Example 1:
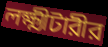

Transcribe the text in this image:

লক্ষ্মীটারীর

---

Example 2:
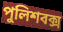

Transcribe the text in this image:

পুলিশবক্স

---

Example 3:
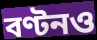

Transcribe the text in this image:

বণ্টনও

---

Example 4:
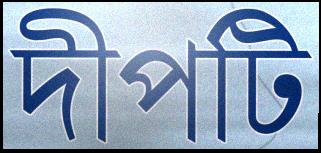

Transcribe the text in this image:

দীপটি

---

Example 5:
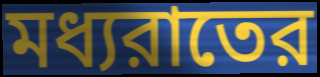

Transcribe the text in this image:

মধ্যরাতের